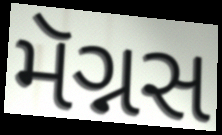
મૅગ્નસ